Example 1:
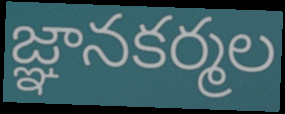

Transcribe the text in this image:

జ్ఞానకర్మల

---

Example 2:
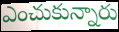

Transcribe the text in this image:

ఎంచుకున్నారు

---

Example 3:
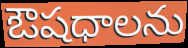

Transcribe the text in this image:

ఔషధాలను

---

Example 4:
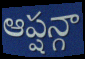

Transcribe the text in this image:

ఆప్షన్గా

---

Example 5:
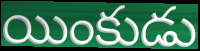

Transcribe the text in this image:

యింకుడు